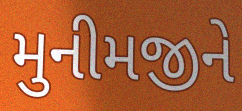
મુનીમજીને